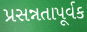
પ્રસન્નતાપૂર્વક